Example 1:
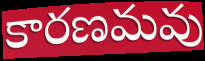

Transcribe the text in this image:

కారణమవు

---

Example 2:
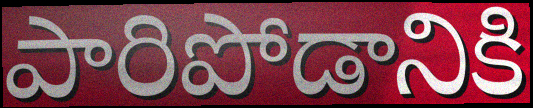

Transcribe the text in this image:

పారిపోడానికి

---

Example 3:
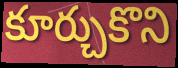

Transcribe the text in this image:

కూర్చుకొని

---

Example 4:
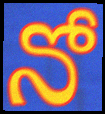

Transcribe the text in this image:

నో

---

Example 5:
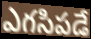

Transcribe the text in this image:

ఎగసిపడే